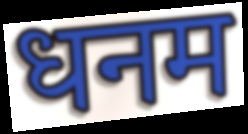
धनम